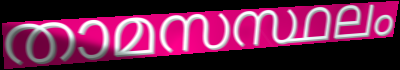
താമസസ്ഥലം